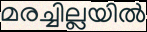
മരച്ചില്ലയിൽ